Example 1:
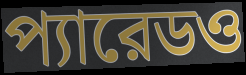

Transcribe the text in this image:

প্যারেডও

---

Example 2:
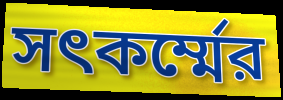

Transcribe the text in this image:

সৎকর্ম্মের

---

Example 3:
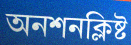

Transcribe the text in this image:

অনশনক্লিষ্ট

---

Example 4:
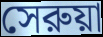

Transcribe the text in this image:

সেরুয়া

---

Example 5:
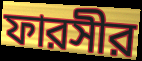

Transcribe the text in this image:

ফারসীর